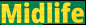
Midlife